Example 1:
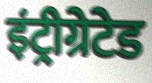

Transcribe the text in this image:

इंट्रीग्रेटेड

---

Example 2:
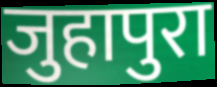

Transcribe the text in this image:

जुहापुरा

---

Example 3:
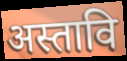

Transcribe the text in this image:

अस्तावि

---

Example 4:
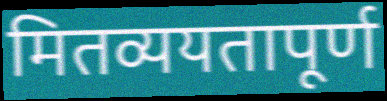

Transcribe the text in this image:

मितव्ययतापूर्ण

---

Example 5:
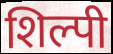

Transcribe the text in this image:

शिल्पी